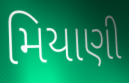
મિયાણી